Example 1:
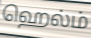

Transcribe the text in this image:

ஹெல்ம்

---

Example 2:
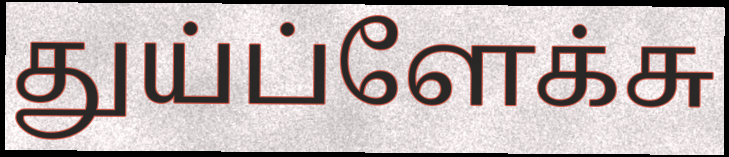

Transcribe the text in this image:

துய்ப்ளேக்சு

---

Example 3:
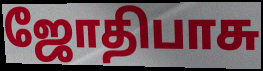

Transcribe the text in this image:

ஜோதிபாசு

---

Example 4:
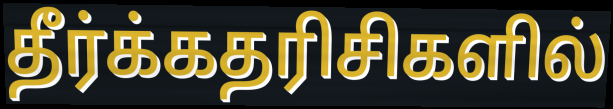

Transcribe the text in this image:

தீர்க்கதரிசிகளில்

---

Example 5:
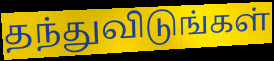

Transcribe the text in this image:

தந்துவிடுங்கள்